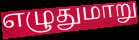
எழுதுமாறு